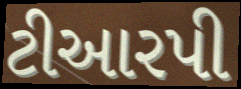
ટીઆરપી